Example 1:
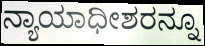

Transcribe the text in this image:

ನ್ಯಾಯಾಧೀಶರನ್ನೂ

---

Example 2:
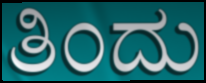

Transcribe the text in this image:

ತಿಂದು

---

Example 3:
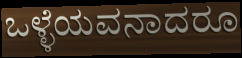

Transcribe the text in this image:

ಒಳ್ಳೆಯವನಾದರೂ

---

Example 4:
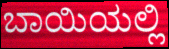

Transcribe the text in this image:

ಬಾಯಿಯಲ್ಲಿ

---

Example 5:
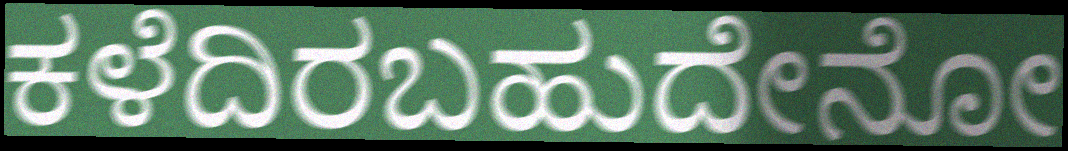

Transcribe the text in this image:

ಕಳೆದಿರಬಹುದೇನೋ